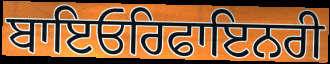
ਬਾਇਓਰਿਫਾਇਨਰੀ